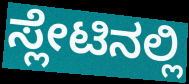
ಸ್ಲೇಟಿನಲ್ಲಿ